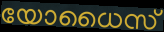
യോധൈസ്